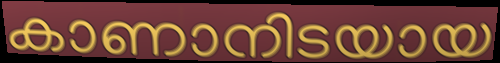
കാണാനിടയായ